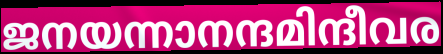
ജനയന്നാനന്ദമിന്ദീവര